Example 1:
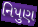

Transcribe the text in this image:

નિપુણ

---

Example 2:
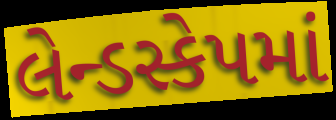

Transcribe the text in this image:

લેન્ડસ્કેપમાં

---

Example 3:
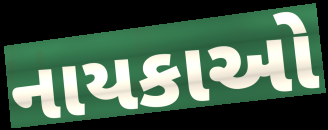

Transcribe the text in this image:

નાયકાઓ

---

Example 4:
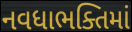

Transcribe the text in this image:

નવધાભક્તિમાં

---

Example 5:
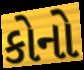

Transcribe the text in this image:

કોનો